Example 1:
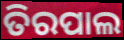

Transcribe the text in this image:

ତିରପାଲ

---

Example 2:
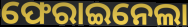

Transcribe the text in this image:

ଫେରାଇନେଲା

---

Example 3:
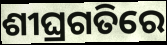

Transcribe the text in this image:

ଶୀଘ୍ରଗତିରେ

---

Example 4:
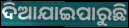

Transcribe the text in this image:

ଦିଆଯାଇପାରୁଛି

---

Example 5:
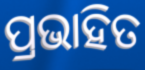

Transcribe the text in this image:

ପ୍ରଭାହିତ